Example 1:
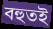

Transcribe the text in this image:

বহুতই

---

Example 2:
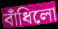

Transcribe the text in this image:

বাঁধিলো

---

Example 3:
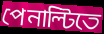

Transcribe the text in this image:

পেনাল্টিতে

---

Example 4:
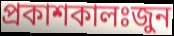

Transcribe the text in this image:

প্রকাশকালঃজুন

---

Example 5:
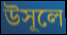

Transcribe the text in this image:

উসূলে